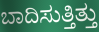
ಬಾದಿಸುತ್ತಿತ್ತು